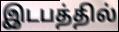
இடபத்தில்